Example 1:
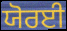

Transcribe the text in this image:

ਯੋਰਈ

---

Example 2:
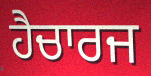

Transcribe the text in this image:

ਹੈਚਾਰਜ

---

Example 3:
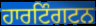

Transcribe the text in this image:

ਹਾਰਟਿੰਗਟਨ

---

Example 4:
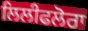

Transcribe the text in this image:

ਲਿਲੀਫਲੋਰਾ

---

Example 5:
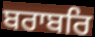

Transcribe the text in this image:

ਬਰਾਬਰਿ